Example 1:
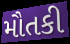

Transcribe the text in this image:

મૌતકી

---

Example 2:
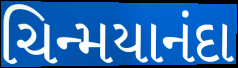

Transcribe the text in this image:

ચિન્મયાનંદા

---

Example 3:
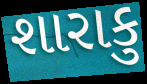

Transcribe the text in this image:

શારાકુ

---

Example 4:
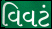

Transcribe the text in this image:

વિવટં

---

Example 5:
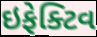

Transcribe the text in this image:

ઇફેક્ટિવ